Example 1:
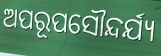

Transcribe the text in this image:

ଅପରୂପସୌନ୍ଦର୍ଯ୍ୟ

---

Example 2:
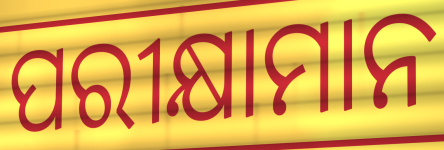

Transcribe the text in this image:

ପରୀକ୍ଷାମାନ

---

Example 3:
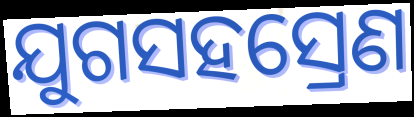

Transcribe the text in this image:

ଯୁଗସହସ୍ରେଣ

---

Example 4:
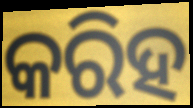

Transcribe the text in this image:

କରିହ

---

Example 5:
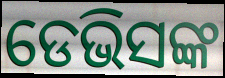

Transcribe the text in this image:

ଡେଭିସଙ୍କ